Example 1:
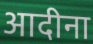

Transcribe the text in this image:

आदीना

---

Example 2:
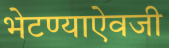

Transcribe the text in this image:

भेटण्याऐवजी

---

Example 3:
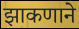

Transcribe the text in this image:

झाकणाने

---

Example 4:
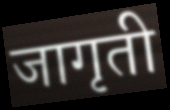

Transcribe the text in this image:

जागृती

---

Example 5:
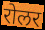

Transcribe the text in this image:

रोलर